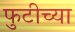
फुटीच्या